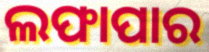
ଲଫାପାର